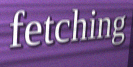
fetching